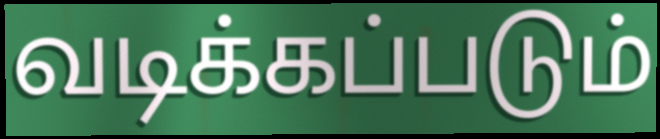
வடிக்கப்படும்